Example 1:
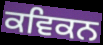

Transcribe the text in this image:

ਕਵਿਕਨ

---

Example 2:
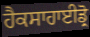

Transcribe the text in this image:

ਹੈਕਸਾਹਾਈਡ੍ਰੋ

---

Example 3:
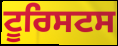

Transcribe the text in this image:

ਟੂਰਿਸਟਸ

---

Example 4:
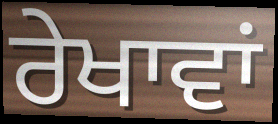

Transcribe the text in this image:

ਰੇਖਾਵਾਂ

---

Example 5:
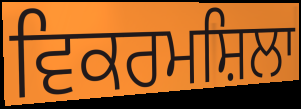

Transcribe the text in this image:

ਵਿਕਰਮਸ਼ਿਲਾ